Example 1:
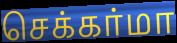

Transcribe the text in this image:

செக்கர்மா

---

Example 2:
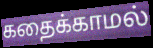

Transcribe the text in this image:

கதைக்காமல்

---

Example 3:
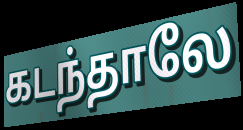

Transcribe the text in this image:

கடந்தாலே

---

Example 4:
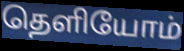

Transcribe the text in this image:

தெளியோம்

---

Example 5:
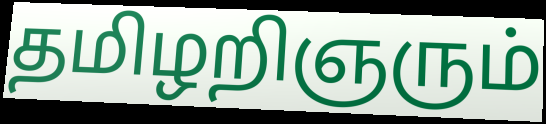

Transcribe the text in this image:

தமிழறிஞரும்